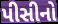
પીસીનો